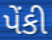
પેંકી